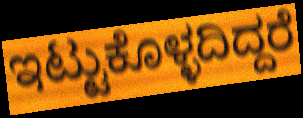
ಇಟ್ಟುಕೊಳ್ಳದಿದ್ದರೆ